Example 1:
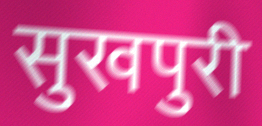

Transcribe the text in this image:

सुखपुरी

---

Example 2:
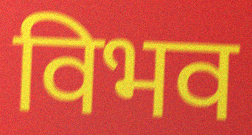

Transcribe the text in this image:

विभव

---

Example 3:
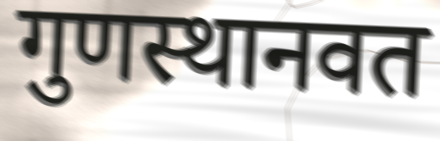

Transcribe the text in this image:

गुणस्थानवत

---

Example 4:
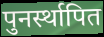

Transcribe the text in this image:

पुनर्स्थापित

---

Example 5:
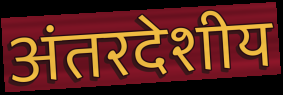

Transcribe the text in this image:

अंतरदेशीय